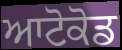
ਆਟੋਕੋਡ